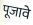
पूजावे